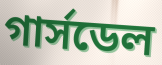
গার্সডেল